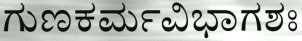
ಗುಣಕರ್ಮವಿಭಾಗಶಃ